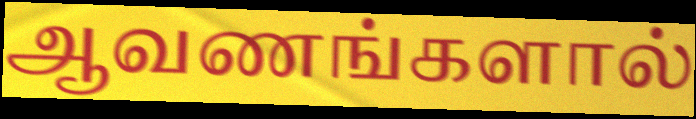
ஆவணங்களால்